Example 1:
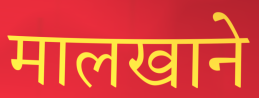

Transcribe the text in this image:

मालखाने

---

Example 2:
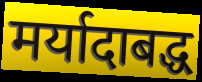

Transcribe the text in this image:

मर्यादाबद्ध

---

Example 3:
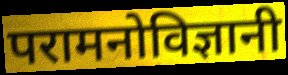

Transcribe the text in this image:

परामनोविज्ञानी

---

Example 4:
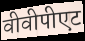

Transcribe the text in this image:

वीवीपीएट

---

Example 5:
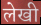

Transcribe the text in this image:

लेखी